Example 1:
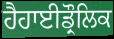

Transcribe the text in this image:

ਹੈਹਾਈਡ੍ਰੌਲਿਕ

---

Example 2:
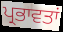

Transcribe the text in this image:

ਪ੍ਰਭਾਵਤਾਂ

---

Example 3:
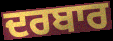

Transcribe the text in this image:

ਦਰਬਾਰ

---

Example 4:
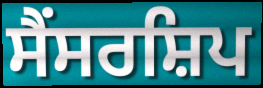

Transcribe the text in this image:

ਸੈਂਸਰਸ਼ਿਪ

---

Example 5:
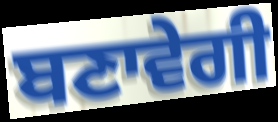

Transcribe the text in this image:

ਬਣਾਵੇਗੀ